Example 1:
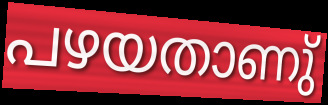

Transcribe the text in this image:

പഴയതാണു്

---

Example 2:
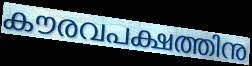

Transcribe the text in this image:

കൗരവപക്ഷത്തിനു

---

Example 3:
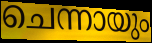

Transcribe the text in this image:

ചെന്നായും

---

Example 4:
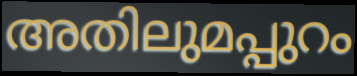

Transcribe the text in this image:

അതിലുമപ്പുറം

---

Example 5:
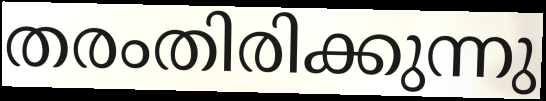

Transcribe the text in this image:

തരംതിരിക്കുന്നു